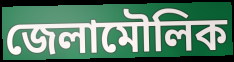
জেলামৌলিক